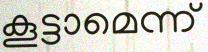
കൂട്ടാമെന്ന്